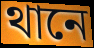
থানে